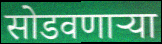
सोडवणाऱ्या